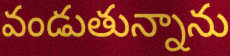
వండుతున్నాను